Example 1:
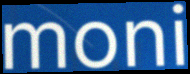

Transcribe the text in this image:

moni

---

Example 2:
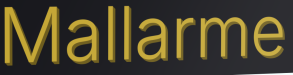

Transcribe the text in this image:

Mallarme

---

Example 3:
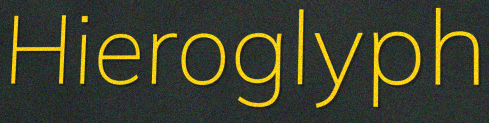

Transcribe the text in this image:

Hieroglyph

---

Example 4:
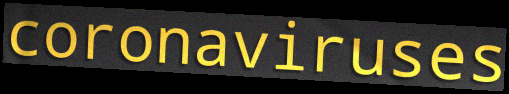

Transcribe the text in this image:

coronaviruses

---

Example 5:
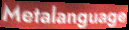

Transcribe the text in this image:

Metalanguage